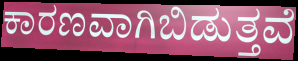
ಕಾರಣವಾಗಿಬಿಡುತ್ತವೆ